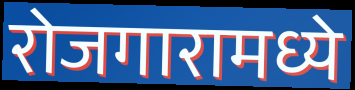
रोजगारामध्ये